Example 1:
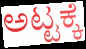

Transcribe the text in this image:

ಅಟ್ಟಕ್ಕೆ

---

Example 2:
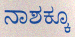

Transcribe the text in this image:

ನಾಶಕ್ಕೂ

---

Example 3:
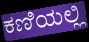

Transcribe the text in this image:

ಕಣಿಯಲ್ಲಿ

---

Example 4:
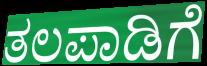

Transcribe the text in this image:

ತಲಪಾಡಿಗೆ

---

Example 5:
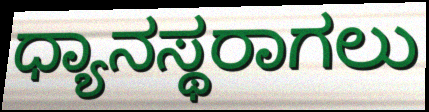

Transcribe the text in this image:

ಧ್ಯಾನಸ್ಥರಾಗಲು